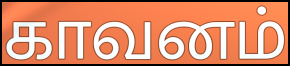
காவனம்